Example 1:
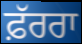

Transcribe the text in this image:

ਫ਼ੱਰਰਾ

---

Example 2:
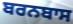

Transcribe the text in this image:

ਬਰਨਬਾਸ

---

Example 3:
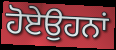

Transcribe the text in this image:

ਹੋਏਉਹਨਾਂ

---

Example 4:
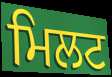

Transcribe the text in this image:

ਮਿਲਟ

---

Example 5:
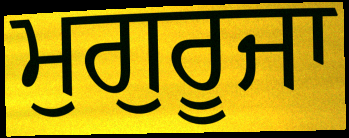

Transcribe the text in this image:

ਮੁਗੁਰੂਜਾ